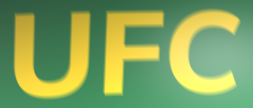
UFC